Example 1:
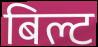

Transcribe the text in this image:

बिल्ट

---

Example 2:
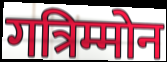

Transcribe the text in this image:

गत्रिम्मोन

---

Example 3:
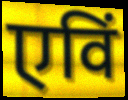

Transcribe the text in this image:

एविं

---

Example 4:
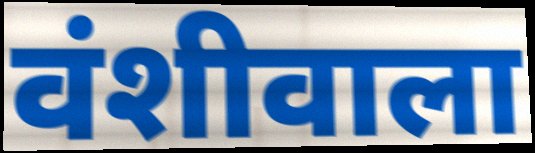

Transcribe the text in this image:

वंशीवाला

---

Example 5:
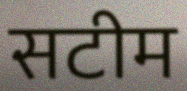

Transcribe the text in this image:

सटीम